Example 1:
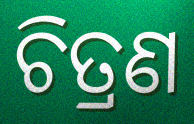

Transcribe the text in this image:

ଚିତ୍ରଣ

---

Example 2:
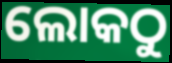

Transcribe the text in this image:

ଲୋକଠୁ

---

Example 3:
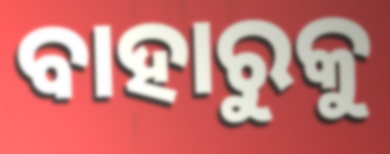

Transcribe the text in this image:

ବାହାରୁକୁ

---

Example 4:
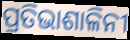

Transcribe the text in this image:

ପ୍ରତିଭାଶାଳିନୀ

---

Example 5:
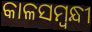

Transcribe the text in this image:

କାଳସମ୍ଵନ୍ଧୀ